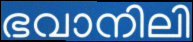
ഭവാനിലി